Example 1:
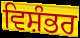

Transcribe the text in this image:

ਵਿਸ਼ੰਭਰ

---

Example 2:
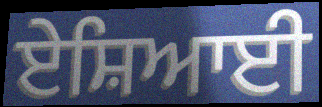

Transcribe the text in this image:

ਏਸ਼ਿਆਈ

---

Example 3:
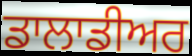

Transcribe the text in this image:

ਡਾਲਾਡੀਅਰ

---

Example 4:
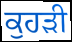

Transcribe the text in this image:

ਕੁਹੜੀ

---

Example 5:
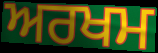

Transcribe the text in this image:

ਅਰਖਮ